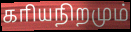
கரியநிறமும்